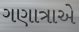
ગણાત્રાએ